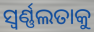
ସ୍ଵର୍ଣ୍ଣଲତାକୁ